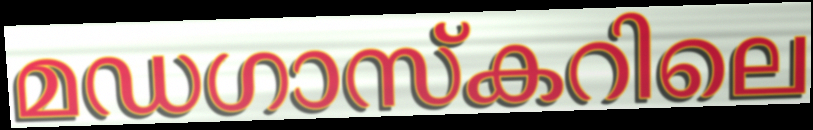
മഡഗാസ്കറിലെ